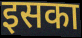
इसका